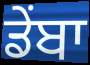
ਡੇਂਬਾ